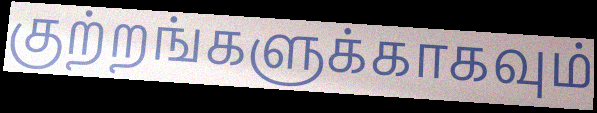
குற்றங்களுக்காகவும்